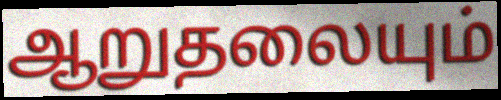
ஆறுதலையும்